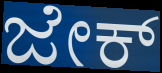
ಜೇಕ್